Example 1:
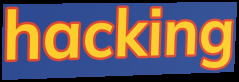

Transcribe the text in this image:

hacking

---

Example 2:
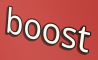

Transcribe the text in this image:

boost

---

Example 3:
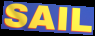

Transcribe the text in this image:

SAIL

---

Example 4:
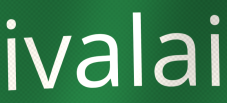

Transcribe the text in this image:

ivalai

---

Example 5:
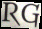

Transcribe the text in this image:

RG